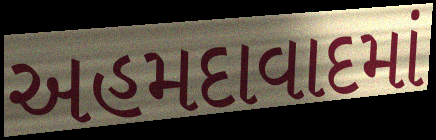
અહમદાવાદમાં